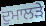
ਦੁਮਾਲੜੇ